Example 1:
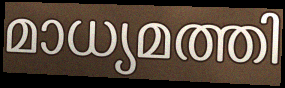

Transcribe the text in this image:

മാധ്യമത്തി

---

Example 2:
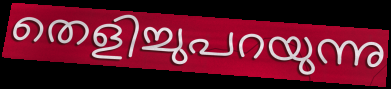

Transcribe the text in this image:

തെളിച്ചുപറയുന്നു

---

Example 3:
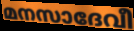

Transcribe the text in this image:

മനസാദേവീ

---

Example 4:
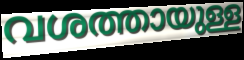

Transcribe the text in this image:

വശത്തായുള്ള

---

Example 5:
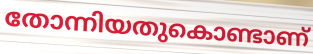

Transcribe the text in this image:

തോന്നിയതുകൊണ്ടാണ്